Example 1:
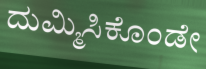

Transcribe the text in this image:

ದುಮ್ಮಿಸಿಕೊಂಡೇ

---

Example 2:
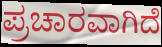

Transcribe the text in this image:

ಪ್ರಚಾರವಾಗಿದೆ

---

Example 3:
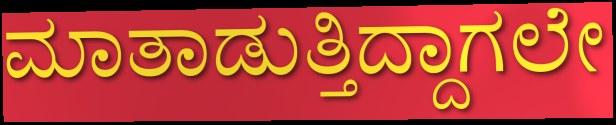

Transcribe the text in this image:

ಮಾತಾಡುತ್ತಿದ್ದಾಗಲೇ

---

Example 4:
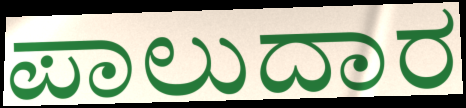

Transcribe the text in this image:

ಪಾಲುದಾರ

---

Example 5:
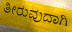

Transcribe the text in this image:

ತೀರುವುದಾಗಿ